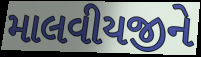
માલવીયજીને